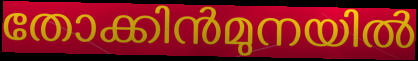
തോക്കിൻമുനയിൽ